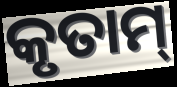
କୃତାମ୍